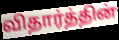
விதார்த்தின்